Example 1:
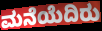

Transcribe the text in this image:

ಮನೆಯೆದಿರು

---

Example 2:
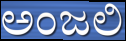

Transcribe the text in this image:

ಅಂಜಲಿ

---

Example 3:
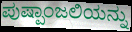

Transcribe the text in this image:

ಪುಷ್ಪಾಂಜಲಿಯನ್ನು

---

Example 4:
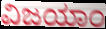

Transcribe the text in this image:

ವಿಜಯಾಂ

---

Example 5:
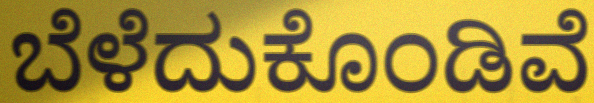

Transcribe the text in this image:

ಬೆಳೆದುಕೊಂಡಿವೆ